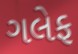
ગલેફ